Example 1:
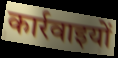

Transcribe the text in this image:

कार्रवाइयों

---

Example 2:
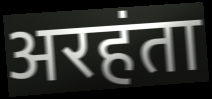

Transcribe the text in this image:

अरहंता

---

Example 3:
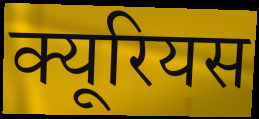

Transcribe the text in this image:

क्यूरियस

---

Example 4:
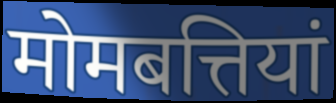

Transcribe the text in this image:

मोमबत्तियां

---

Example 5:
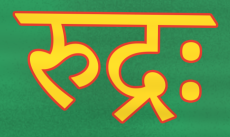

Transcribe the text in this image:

रुद्रः